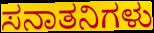
ಸನಾತನಿಗಳು